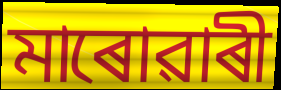
মাৰোৱাৰী